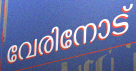
വേരിനോട്